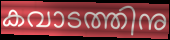
കവാടത്തിനു